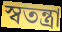
স্বতন্ত্রা